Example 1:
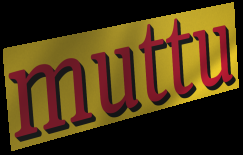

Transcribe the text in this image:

muttu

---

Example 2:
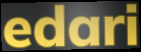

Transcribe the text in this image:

edari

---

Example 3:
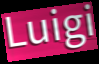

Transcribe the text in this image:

Luigi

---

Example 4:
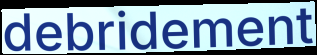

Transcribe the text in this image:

debridement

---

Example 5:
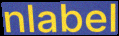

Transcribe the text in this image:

nlabel